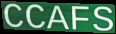
CCAFS